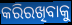
କରିରଖିବାକୁ